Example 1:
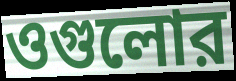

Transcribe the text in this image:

ওগুলোর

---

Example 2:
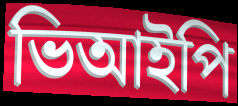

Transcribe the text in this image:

ভিআইপি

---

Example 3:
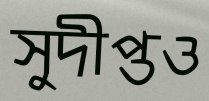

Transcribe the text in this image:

সুদীপ্তও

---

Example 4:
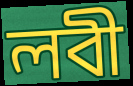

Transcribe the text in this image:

লবী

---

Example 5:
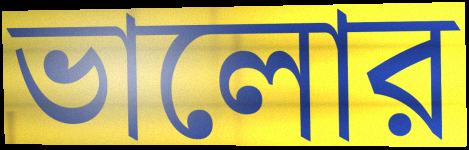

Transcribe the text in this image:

ভালোর